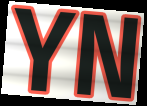
YN